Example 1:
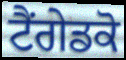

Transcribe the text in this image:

ਟੈਂਗੇਡਕੋ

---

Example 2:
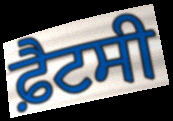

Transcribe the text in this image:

ਫ਼ੈਟਸੀ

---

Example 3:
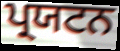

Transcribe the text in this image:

ਪ੍ਰਯਟਨ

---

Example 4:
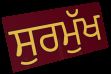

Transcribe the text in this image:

ਸੁਰਮੁੱਖ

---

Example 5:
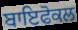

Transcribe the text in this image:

ਬਾਇਫੋਕਲ